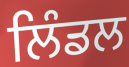
ਲਿੰਡਲ